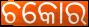
ଚକୋର